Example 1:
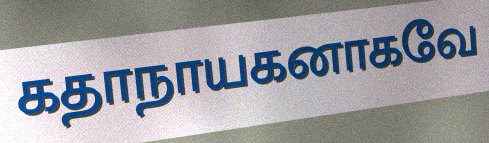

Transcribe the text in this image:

கதாநாயகனாகவே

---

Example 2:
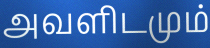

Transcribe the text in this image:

அவளிடமும்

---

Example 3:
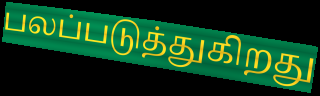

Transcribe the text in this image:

பலப்படுத்துகிறது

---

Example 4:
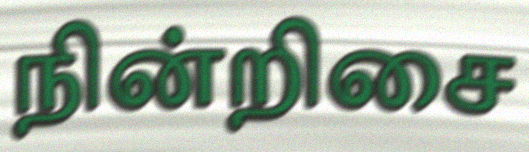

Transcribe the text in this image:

நின்றிசை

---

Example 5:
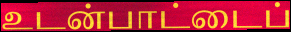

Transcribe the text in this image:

உடன்பாட்டைப்